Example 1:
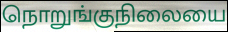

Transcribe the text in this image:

நொறுங்குநிலையை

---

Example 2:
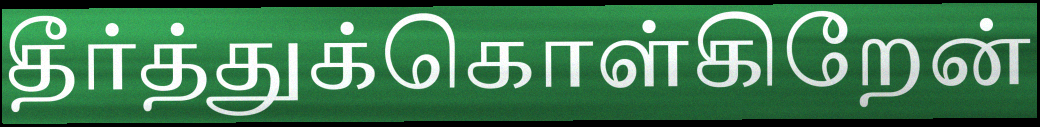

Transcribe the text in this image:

தீர்த்துக்கொள்கிறேன்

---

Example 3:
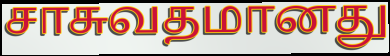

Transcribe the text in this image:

சாசுவதமானது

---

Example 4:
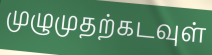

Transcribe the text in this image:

முழுமுதற்கடவுள்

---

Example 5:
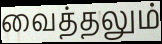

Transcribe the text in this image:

வைத்தலும்